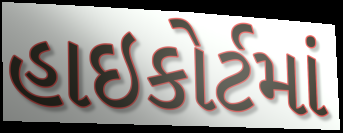
હાઇકોર્ટમાં